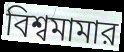
বিশ্বমামার